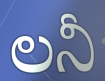
లనీ